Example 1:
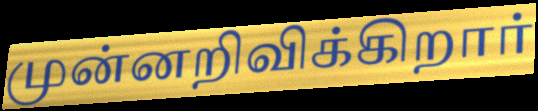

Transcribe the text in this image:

முன்னறிவிக்கிறார்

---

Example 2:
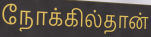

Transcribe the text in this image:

நோக்கில்தான்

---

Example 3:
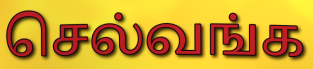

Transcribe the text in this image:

செல்வங்க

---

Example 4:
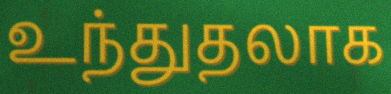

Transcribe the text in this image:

உந்துதலாக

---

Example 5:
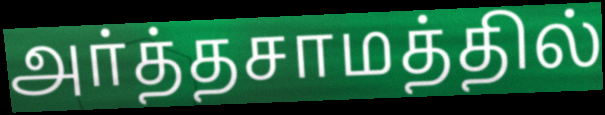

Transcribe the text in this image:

அர்த்தசாமத்தில்